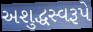
અશુદ્ધસ્વરૂપે